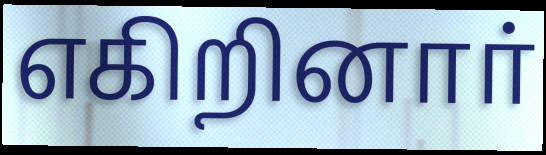
எகிறினார்